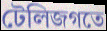
টেলিজগতে